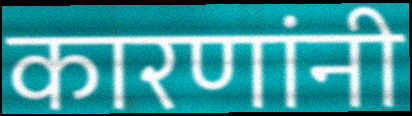
कारणांनी